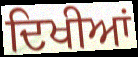
ਦਿਖੀਆਂ